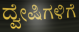
ದ್ವೇಷಿಗಳಿಗೆ